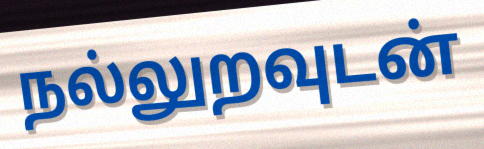
நல்லுறவுடன்